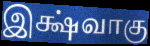
இக்ஷ்வாகு